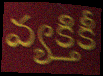
వ్యక్తికీ